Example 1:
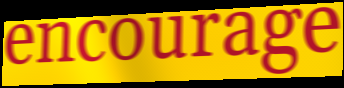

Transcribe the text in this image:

encourage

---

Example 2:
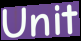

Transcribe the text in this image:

Unit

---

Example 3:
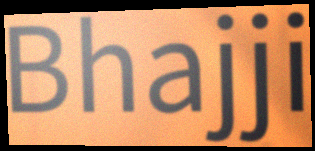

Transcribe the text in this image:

Bhajji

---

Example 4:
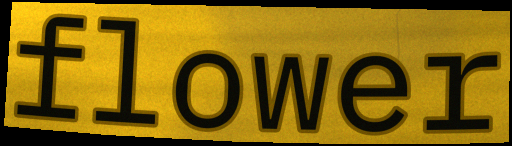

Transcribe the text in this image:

flower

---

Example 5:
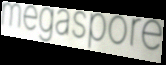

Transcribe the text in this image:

megaspore